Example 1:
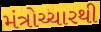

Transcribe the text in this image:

મંત્રોચ્ચારથી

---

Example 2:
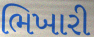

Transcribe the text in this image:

ભિખારી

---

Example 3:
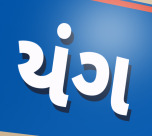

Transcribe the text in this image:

યંગ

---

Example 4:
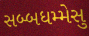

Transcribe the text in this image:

સબ્બધમ્મેસુ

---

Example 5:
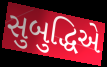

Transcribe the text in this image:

સુબુદ્ધિએ